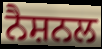
ਨੈਸ਼ਨਲ